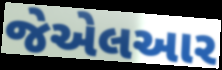
જેએલઆર